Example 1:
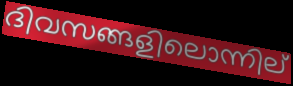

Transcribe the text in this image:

ദിവസങ്ങളിലൊന്നില്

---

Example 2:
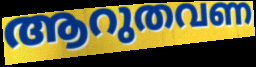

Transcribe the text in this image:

ആറുതവണ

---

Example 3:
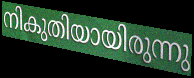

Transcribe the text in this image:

നികുതിയായിരുന്നു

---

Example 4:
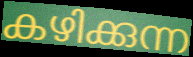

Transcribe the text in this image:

കഴിക്കുന്ന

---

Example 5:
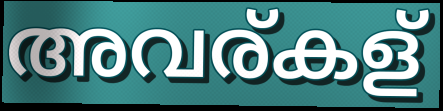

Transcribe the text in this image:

അവര്കള്